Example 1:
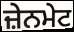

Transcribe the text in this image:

ਜ਼ੇਨਮੇਟ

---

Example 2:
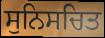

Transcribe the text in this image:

ਸੁਨਿਸਚਿਤ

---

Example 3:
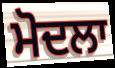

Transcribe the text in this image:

ਮੋਦਲਾ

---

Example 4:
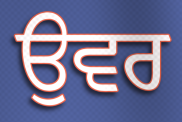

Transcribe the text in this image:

ਉਵਰ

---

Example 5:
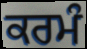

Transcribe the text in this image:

ਕਰਮੰ